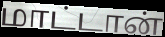
மாட்டான்